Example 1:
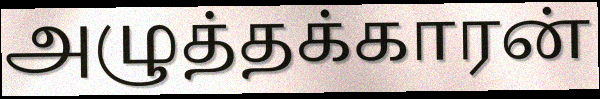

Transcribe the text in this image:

அழுத்தக்காரன்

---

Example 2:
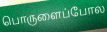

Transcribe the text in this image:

பொருளைப்போல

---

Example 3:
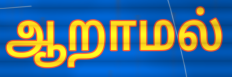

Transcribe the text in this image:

ஆறாமல்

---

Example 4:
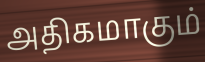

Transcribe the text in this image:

அதிகமாகும்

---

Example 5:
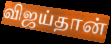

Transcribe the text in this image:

விஜய்தான்